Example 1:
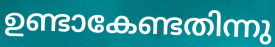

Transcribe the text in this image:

ഉണ്ടാകേണ്ടതിന്നു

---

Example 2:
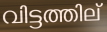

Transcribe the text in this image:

വിട്ടത്തില്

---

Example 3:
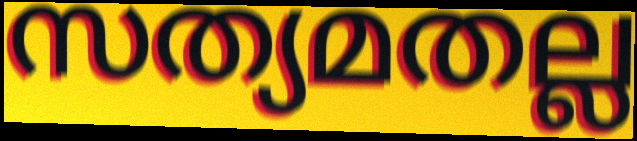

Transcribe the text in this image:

സത്യമതല്ല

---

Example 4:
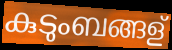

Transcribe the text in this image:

കുടുംബങ്ങള്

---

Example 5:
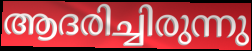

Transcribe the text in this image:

ആദരിച്ചിരുന്നു